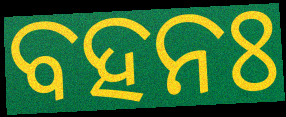
ବହନଃ